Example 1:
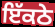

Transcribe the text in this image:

ਇੱਕਠੇ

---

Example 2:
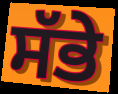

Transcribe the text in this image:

ਸੱਭੇ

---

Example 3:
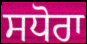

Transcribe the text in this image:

ਸਧੋਰਾ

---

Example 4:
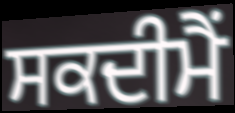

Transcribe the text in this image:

ਸਕਦੀਮੈਂ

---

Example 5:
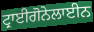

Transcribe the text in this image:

ਟ੍ਰਾਈਗੋਨੇਲਾਈਨ